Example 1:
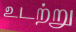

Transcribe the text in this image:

உடற்று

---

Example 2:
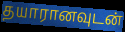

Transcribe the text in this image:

தயாரானவுடன்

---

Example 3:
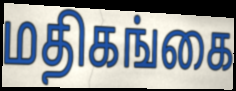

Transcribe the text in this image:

மதிகங்கை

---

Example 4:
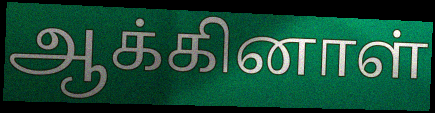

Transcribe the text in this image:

ஆக்கினாள்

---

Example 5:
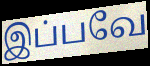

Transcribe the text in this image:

இப்பவே